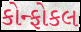
કોન્ફોકલ